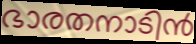
ഭാരതനാടിൻ